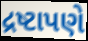
દ્રષ્ટાપણે